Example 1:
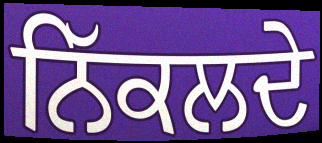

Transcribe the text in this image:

ਨਿੱਕਲਦੇ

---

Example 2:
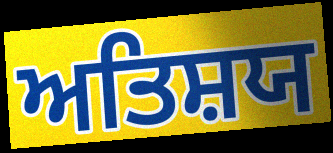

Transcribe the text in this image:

ਅਤਿਸ਼ਯ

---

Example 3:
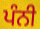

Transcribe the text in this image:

ਪੰਨੀ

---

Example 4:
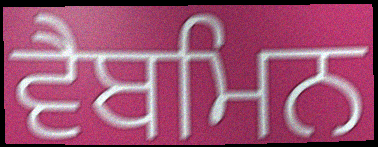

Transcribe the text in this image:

ਵੈਬਮਿਨ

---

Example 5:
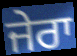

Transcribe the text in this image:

ਜੇਰਾ